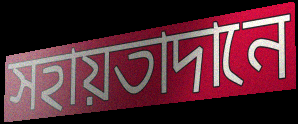
সহায়তাদানে